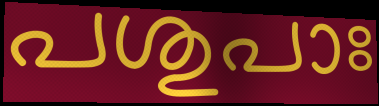
പശുപാഃ